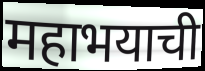
महाभयाची